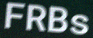
FRBs